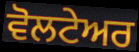
ਵੋਲਟੇਅਰ